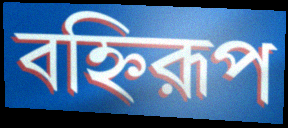
বহ্নিরূপ